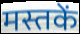
मस्तकें